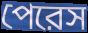
পেরেস